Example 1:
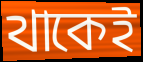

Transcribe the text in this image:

থাকেই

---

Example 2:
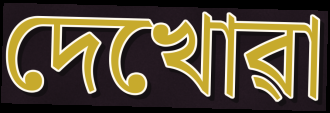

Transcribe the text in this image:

দেখোৱা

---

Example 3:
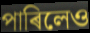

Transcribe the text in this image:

পাৰিলেও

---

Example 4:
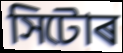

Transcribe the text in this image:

সিটোৰ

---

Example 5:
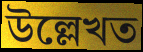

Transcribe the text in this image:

উল্লেখত